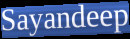
Sayandeep